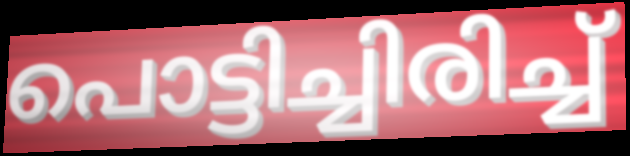
പൊട്ടിച്ചിരിച്ച്